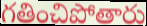
గతించిపోతారు